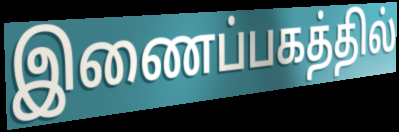
இணைப்பகத்தில்